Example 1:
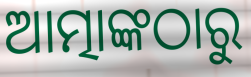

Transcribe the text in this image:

ଆତ୍ମାଙ୍କଠାରୁ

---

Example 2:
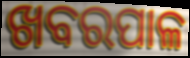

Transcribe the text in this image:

ଖବରପାଳ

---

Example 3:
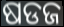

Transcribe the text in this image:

ଷଡଜ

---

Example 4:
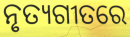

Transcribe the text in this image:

ନୃତ୍ୟଗୀତରେ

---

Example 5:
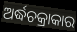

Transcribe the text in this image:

ଅର୍ଦ୍ଧଚକ୍ରାକାର